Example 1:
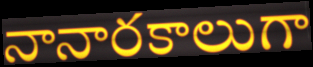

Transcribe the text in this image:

నానారకాలుగా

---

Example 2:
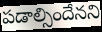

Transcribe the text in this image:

పడాల్సిందేనని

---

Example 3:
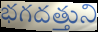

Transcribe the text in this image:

భగదత్తుని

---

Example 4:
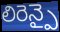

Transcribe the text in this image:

లిరెన్పై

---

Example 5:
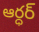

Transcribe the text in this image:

ఆర్ధర్